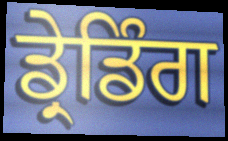
ਡ੍ਰੇਡਿੰਗ